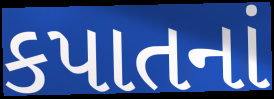
કપાતનાં